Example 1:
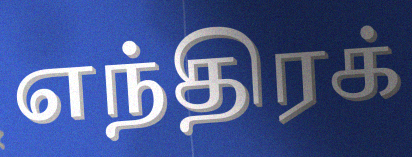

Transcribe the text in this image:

எந்திரக்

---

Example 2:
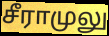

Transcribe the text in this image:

சீராமுலு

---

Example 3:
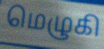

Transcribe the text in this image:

மெழுகி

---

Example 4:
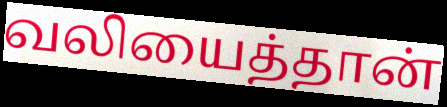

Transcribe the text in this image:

வலியைத்தான்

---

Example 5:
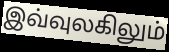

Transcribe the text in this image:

இவ்வுலகிலும்